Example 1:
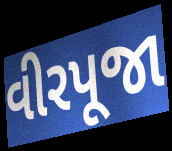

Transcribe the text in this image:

વીરપૂજા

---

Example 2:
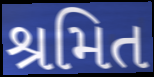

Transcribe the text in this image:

શ્રમિત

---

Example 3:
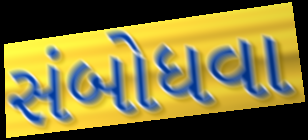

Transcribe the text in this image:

સંબોધવા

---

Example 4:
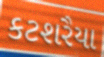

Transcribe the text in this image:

કટશરૈયા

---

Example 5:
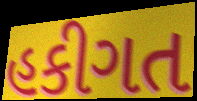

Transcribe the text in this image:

હકીગત